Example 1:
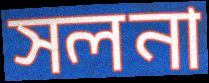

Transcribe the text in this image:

সলনা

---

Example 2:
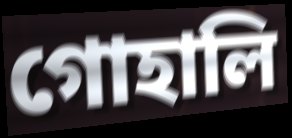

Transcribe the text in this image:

গোহালি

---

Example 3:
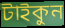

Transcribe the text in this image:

টাইকুন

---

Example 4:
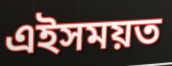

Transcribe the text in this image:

এইসময়ত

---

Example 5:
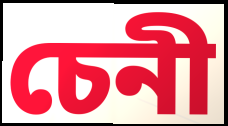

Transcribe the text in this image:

চেনী